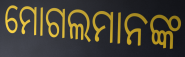
ମୋଗଲମାନଙ୍କ